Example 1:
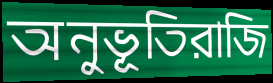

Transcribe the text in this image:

অনুভূতিরাজি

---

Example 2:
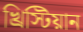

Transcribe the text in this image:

খ্রিস্টিয়ান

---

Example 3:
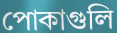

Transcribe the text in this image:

পোকাগুলি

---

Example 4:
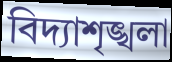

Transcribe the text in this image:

বিদ্যাশৃঙ্খলা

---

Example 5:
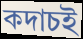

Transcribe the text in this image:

কদাচই